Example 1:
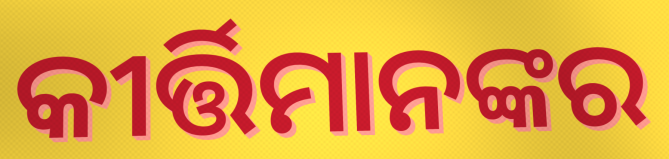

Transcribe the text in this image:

କୀର୍ତ୍ତିମାନଙ୍କର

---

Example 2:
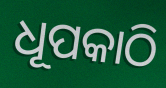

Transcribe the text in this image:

ଧୂପକାଠି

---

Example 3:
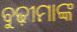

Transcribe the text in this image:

ବୁଢ଼ୀମାଙ୍କ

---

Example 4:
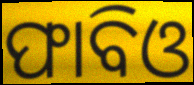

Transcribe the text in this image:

ଫାବିଓ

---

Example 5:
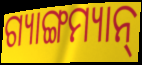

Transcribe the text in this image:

ଗ୍ୟାଙ୍ଗମ୍ୟାନ୍